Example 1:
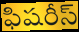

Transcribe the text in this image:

ఫిషరీస్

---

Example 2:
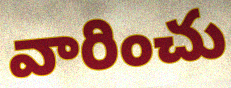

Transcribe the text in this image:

వారించు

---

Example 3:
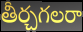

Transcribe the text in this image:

తీర్చగలరా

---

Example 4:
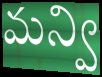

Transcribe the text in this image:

మన్వి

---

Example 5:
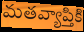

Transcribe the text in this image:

మతవ్యాప్తికి